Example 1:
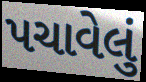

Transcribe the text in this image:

પચાવેલું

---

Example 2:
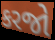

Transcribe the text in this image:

કરજો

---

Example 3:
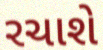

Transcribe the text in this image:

રચાશે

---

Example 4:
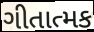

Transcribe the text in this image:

ગીતાત્મક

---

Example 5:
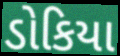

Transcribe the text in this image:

ડોકિયા